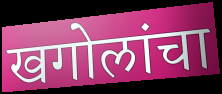
खगोलांचा